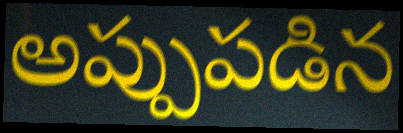
అప్పుపడిన